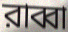
রাব্বা